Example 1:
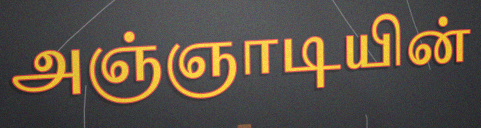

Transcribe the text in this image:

அஞ்ஞாடியின்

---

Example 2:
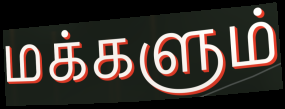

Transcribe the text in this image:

மக்களும்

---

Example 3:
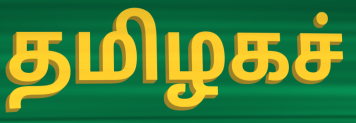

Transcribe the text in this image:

தமிழகச்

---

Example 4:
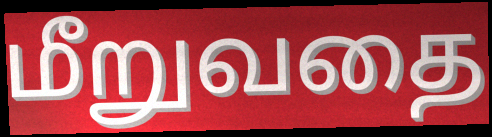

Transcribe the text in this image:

மீறுவதை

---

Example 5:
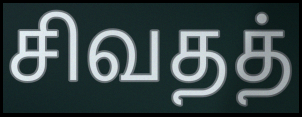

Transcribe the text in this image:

சிவதத்